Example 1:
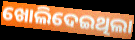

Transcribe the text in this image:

ଖୋଲିଦେଇଥିଲା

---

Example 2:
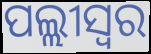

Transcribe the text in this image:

ପଲ୍ଲୀସ୍ଵର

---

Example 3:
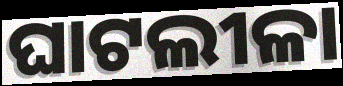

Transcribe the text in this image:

ଘାଟଲୀଳା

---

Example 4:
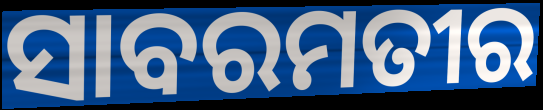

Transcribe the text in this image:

ସାବରମତୀର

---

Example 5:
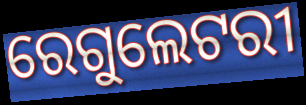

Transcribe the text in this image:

ରେଗୁଲେଟରୀ